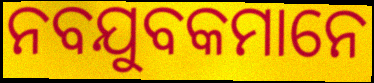
ନବଯୁବକମାନେ